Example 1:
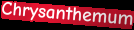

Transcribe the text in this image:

Chrysanthemum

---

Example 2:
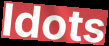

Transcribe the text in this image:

ldots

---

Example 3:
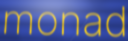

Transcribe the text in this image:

monad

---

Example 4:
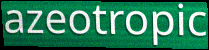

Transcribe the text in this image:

azeotropic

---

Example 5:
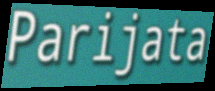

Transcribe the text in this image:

Parijata